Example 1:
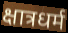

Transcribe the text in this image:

क्षात्रधर्म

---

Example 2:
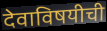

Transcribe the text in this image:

देवाविषयीची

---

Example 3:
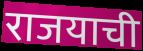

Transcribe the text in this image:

राजयाची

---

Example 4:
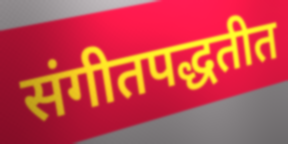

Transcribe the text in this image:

संगीतपद्धतीत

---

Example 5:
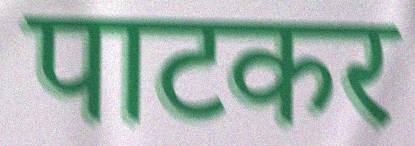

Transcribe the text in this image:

पाटकर